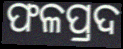
ଫଳପ୍ରଦ